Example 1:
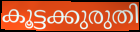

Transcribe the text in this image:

കൂട്ടക്കുരുതി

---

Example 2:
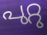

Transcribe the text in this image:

പുറ്റു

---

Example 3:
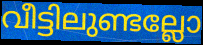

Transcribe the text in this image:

വീട്ടിലുണ്ടല്ലോ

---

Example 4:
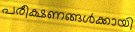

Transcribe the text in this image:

പരീക്ഷണങ്ങൾക്കായി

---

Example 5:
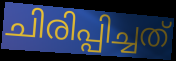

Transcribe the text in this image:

ചിരിപ്പിച്ചത്